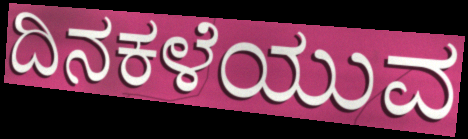
ದಿನಕಳೆಯುವ